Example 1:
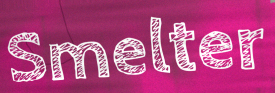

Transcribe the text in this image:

Smelter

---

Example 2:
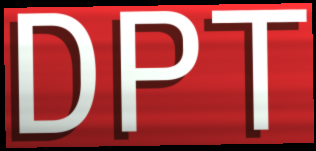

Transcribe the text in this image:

DPT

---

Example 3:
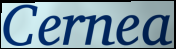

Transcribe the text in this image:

Cernea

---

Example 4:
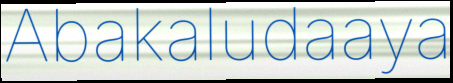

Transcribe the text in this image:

Abakaludaaya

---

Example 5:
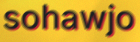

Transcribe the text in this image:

sohawjo